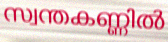
സ്വന്തകണ്ണിൽ